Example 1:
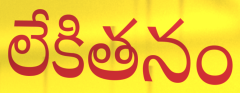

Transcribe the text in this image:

లేకితనం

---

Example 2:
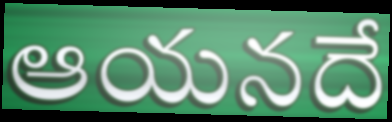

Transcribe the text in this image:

ఆయనదే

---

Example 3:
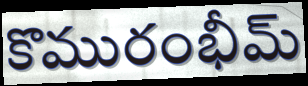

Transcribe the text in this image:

కొమురంభీమ్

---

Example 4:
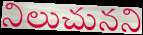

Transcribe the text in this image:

నిలుచునని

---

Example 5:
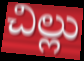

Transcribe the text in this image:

చిల్లు